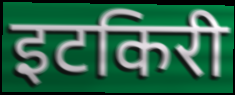
इटकिरी